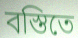
বস্তিতে